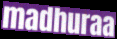
madhuraa